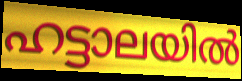
ഹട്ടാലയിൽ